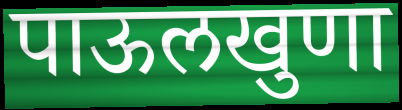
पाऊलखुणा